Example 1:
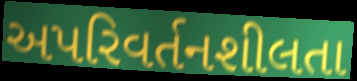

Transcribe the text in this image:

અપરિવર્તનશીલતા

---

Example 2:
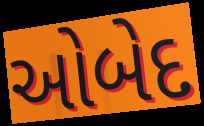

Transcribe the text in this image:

ઓબેદ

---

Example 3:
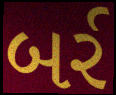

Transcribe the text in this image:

બર્ર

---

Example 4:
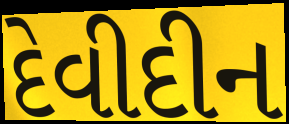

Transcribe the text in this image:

દેવીદીન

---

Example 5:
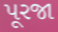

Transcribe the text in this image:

પૂરજા